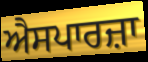
ਐਸਪਾਰਜ਼ਾ